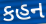
કહન